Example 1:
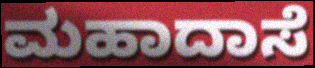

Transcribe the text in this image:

ಮಹಾದಾಸೆ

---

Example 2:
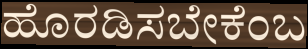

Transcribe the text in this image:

ಹೊರಡಿಸಬೇಕೆಂಬ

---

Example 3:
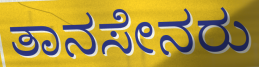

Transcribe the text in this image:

ತಾನಸೇನರು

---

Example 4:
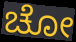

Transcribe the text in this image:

ಚೋ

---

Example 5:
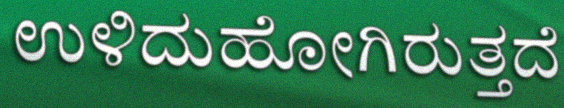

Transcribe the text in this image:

ಉಳಿದುಹೋಗಿರುತ್ತದೆ